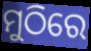
ମୁଠିରେ